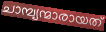
ചാമ്പ്യന്മാരായത്